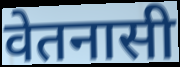
वेतनासी